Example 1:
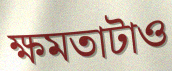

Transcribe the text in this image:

ক্ষমতাটাও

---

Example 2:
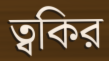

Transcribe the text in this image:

ত্বকির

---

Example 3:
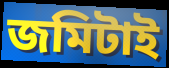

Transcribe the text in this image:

জমিটাই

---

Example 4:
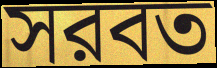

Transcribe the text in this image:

সরবত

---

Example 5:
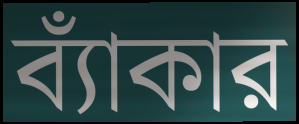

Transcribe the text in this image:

ব্যাঁকার